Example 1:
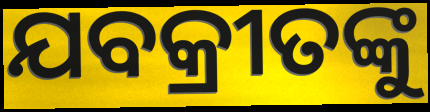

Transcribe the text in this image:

ଯବକ୍ରୀତଙ୍କୁ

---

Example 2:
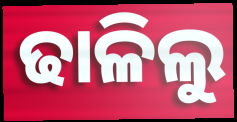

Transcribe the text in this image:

ଢାଳିଲୁ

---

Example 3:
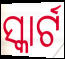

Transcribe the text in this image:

ସ୍କାର୍ଟ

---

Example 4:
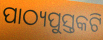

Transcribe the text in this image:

ପାଠ୍ୟପୁସ୍ତକଟି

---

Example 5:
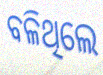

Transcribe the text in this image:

ବଳିଥିଲେ